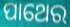
ପାଥେର